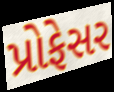
પ્રોફેસર